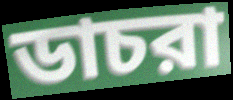
ডাচরা